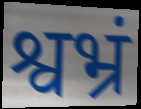
श्वभ्रं